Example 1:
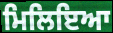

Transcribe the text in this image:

ਮਿਲਿਇਆ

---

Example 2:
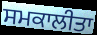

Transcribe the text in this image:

ਸਮਕਾਲੀਤਾ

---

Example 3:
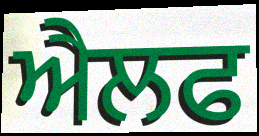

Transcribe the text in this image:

ਐਲਫ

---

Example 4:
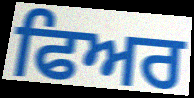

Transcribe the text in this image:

ਫਿਅਰ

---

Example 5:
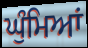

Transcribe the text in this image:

ਘੁੰਮਿਆਂ